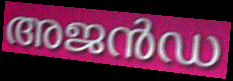
അജൻഡ